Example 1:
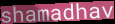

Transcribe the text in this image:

shamadhav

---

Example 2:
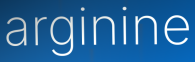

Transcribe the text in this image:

arginine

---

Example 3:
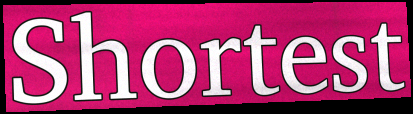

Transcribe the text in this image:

Shortest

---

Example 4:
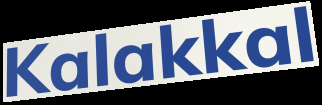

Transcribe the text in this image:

Kalakkal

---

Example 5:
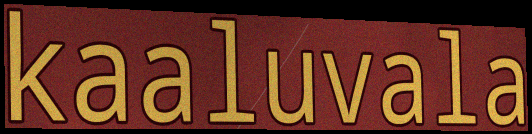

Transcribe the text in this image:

kaaluvala